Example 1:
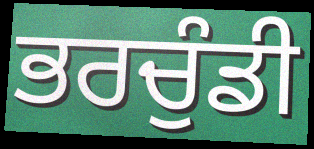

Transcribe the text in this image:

ਭਰਚੁੰਡੀ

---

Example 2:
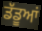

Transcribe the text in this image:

ਡੱਡੂਆਂ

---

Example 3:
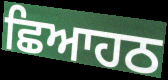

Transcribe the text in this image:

ਛਿਆਹਠ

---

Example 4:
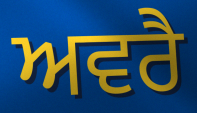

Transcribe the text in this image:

ਅਵਰੈ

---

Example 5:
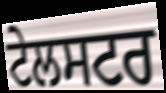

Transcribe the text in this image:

ਟੇਲਸਟਰ